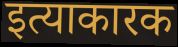
इत्याकारक